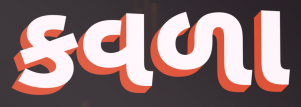
કવળા